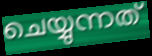
ചെയ്യുന്നത്